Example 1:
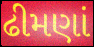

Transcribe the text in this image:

ઢીમણાં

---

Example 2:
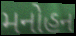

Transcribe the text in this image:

મનોહન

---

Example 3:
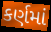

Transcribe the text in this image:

કર્ણમાં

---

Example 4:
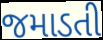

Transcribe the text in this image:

જમાડતી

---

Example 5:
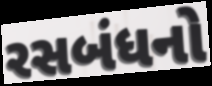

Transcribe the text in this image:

રસબંધનો